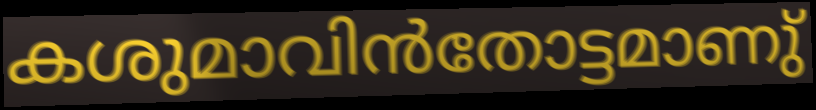
കശുമാവിൻതോട്ടമാണു്